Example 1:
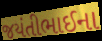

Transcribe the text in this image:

જયંતીભાઈના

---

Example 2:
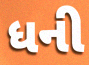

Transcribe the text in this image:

ધની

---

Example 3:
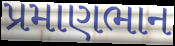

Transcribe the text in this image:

પ્રમાણભાન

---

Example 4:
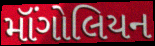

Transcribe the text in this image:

મૉંગોલિયન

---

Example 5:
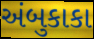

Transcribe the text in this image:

અંબુકાકા